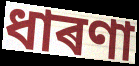
ধাৰণা